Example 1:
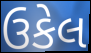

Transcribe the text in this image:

ઉકેલ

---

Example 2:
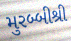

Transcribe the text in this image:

મુરબ્બીશ્રી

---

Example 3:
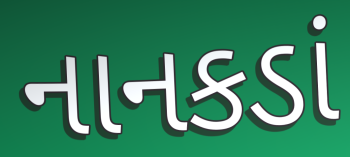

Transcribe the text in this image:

નાનકડાં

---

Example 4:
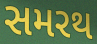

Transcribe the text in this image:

સમરથ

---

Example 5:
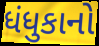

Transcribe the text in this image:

ધંધુકાનો